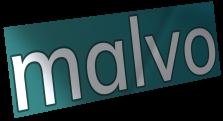
malvo